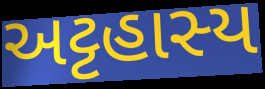
અટ્ટહાસ્ય